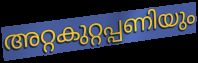
അറ്റകുറ്റപ്പണിയും